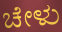
ಚೇಳು